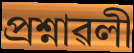
প্ৰশ্নাৱলী